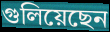
গুলিয়েছেন